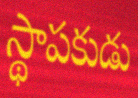
స్థాపకుడు